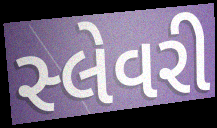
સ્લેવરી